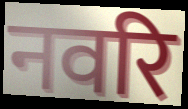
नवरि